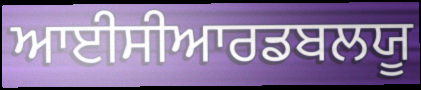
ਆਈਸੀਆਰਡਬਲਯੂ